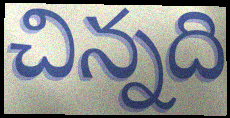
చిన్నది